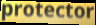
protector